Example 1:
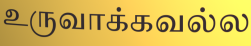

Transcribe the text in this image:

உருவாக்கவல்ல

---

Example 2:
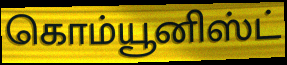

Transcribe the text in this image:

கொம்யூனிஸ்ட்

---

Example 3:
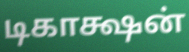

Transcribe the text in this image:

டிகாக்ஷன்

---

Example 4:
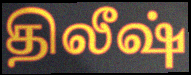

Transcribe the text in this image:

திலீஷ்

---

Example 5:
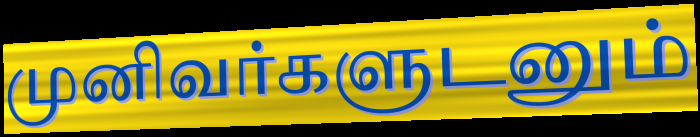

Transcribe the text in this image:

முனிவர்களுடனும்